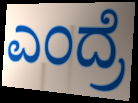
ಎಂದ್ರೆ